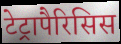
टेट्रापैरिसिस